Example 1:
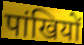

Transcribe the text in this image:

पांखियों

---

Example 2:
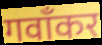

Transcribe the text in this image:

गवाँकर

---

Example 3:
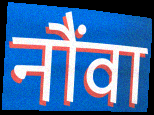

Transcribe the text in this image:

नौंवा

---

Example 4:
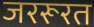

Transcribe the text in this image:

जररूरत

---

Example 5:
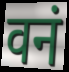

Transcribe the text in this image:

वनं